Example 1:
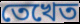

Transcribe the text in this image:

তেখেত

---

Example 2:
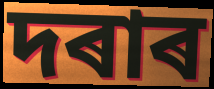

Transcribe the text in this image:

দৰাৰ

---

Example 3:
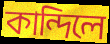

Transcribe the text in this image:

কান্দিলে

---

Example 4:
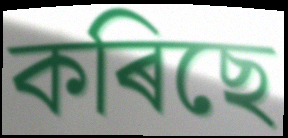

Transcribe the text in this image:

কৰিছে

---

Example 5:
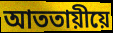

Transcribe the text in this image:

আততায়ীয়ে